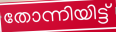
തോന്നിയിട്ട്